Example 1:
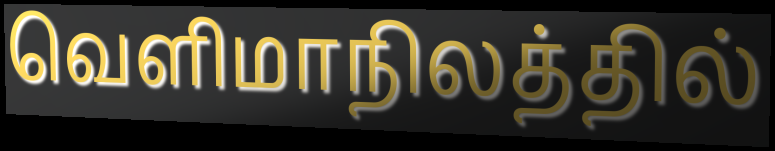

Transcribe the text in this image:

வெளிமாநிலத்தில்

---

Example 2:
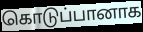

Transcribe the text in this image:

கொடுப்பானாக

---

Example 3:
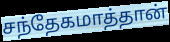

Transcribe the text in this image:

சந்தேகமாத்தான்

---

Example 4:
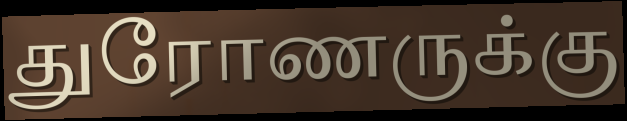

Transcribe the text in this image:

துரோணருக்கு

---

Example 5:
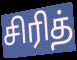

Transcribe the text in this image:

சிரித்